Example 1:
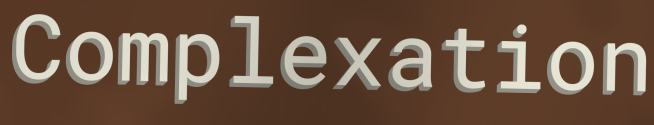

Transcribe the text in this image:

Complexation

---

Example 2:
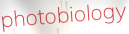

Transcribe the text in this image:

photobiology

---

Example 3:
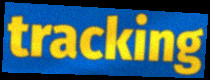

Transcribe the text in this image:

tracking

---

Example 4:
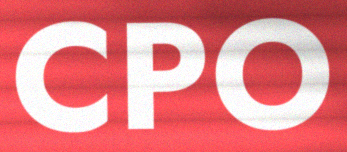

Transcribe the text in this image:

CPO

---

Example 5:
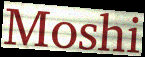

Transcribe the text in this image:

Moshi